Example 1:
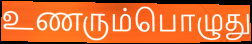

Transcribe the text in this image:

உணரும்பொழுது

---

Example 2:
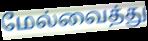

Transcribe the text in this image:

மேல்வைத்து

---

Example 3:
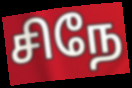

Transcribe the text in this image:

சிநே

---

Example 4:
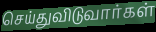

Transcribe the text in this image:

செய்துவிடுவார்கள்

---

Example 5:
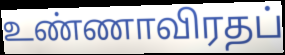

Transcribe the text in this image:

உண்ணாவிரதப்